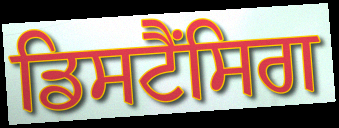
ਡਿਸਟੈਂਸਿਗ